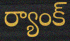
ర్యాంక్